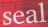
seal